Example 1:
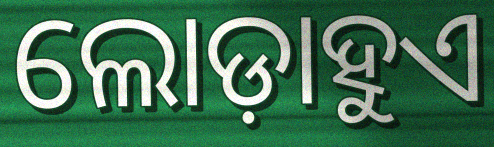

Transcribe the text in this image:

ଲୋଡ଼ାହୁଏ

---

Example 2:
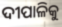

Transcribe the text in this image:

ଦୀପାଳିକୁ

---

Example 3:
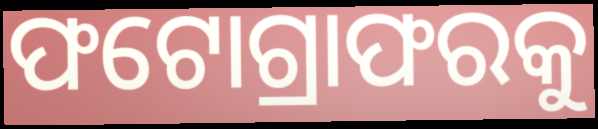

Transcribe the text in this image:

ଫଟୋଗ୍ରାଫରକୁ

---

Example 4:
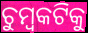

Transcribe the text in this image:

ଚୁମ୍ବକଟିକୁ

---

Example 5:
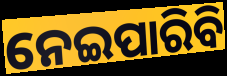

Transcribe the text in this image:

ନେଇପାରିବି